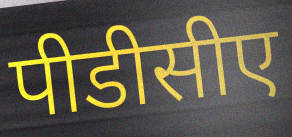
पीडीसीए